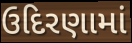
ઉદિરણામાં